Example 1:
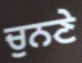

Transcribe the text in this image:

ਚੁਨਣੇ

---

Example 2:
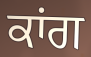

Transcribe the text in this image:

ਕਾਂਗ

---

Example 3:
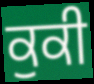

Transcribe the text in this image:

ਕੁਕੀ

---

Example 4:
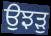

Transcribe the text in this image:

ਉਝੜੁ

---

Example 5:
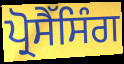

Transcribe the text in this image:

ਪ੍ਰੋਸੈੱਸਿੰਗ